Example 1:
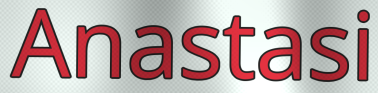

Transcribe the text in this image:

Anastasi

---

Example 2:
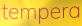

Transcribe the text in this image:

tempera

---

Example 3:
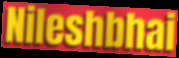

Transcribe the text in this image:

Nileshbhai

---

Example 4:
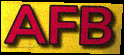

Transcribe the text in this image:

AFB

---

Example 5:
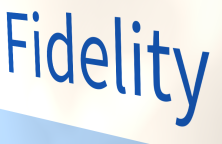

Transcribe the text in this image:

Fidelity